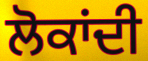
ਲੋਕਾਂਦੀ